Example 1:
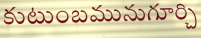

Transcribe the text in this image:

కుటుంబమునుగూర్చి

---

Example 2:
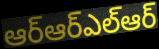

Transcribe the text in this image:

ఆర్ఆర్ఎల్ఆర్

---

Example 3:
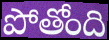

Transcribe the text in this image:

పోతోంది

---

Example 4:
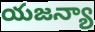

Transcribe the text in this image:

యజన్యా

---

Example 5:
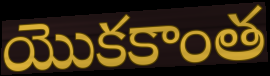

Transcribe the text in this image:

యొకకాంత